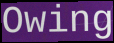
Owing